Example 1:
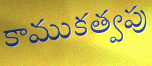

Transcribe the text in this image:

కాముకత్వపు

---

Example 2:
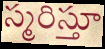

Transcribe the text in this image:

స్మరిస్తూ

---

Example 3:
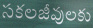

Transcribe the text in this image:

సకలజీవులకు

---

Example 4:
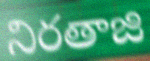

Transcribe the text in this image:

నిరతాజి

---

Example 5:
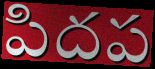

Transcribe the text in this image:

పిదప